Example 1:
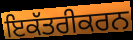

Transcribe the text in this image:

ਇਕੱਤਰੀਕਰਨ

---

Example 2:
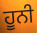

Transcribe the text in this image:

ਹੂਨੀ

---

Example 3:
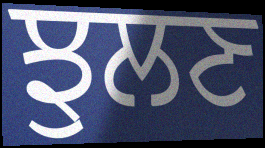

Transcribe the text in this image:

ਝੁਲਣ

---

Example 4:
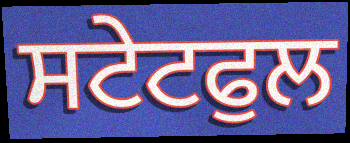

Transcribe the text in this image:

ਸਟੇਟਫੁਲ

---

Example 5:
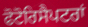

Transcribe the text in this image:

ਫੋਟੋਰਿਸੈਪਟਰਾਂ